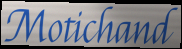
Motichand